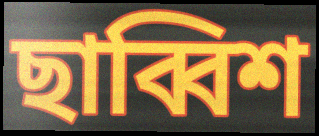
ছাব্বিশ